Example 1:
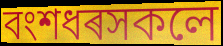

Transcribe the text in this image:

বংশধৰসকলে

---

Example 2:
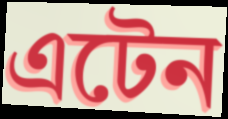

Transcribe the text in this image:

এটেন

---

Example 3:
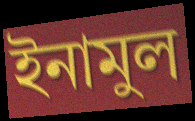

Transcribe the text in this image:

ইনামুল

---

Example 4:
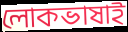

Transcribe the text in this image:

লোকভাষাই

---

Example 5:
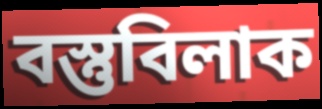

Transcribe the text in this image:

বস্তুবিলাক